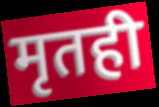
मृतही